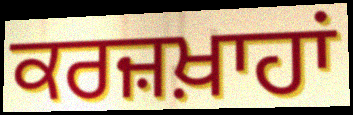
ਕਰਜ਼ਖ਼ਾਹਾਂ